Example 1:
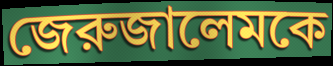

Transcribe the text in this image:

জেরুজালেমকে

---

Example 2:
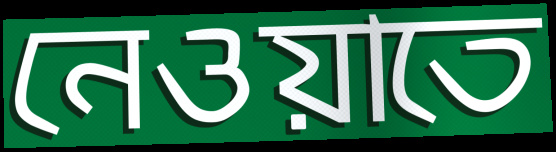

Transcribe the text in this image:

নেওয়াতে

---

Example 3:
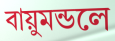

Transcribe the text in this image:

বায়ুমন্ডলে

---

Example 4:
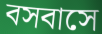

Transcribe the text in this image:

বসবাসে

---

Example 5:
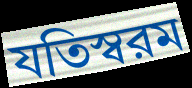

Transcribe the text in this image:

যতিস্বরম